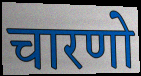
चारणो